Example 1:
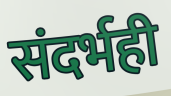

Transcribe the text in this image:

संदर्भही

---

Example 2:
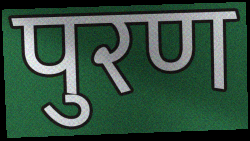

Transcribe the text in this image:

पुरण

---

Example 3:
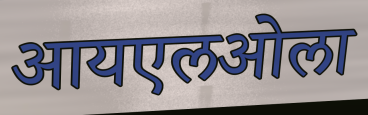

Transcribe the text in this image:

आयएलओला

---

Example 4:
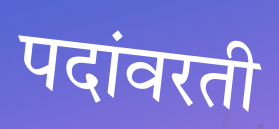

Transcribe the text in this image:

पदांवरती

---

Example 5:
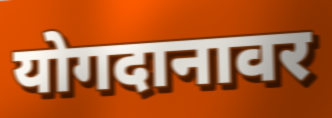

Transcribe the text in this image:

योगदानावर